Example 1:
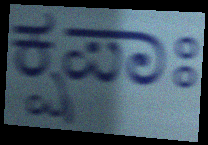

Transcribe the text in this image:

ಕ್ಷಪಾಃ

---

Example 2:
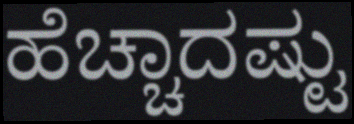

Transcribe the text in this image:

ಹೆಚ್ಚಾದಷ್ಟು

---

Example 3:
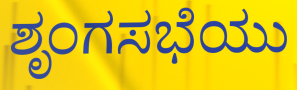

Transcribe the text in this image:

ಶೃಂಗಸಭೆಯು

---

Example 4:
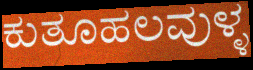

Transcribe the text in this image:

ಕುತೂಹಲವುಳ್ಳ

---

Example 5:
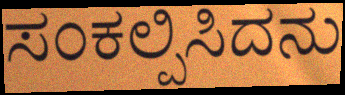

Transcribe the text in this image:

ಸಂಕಲ್ಪಿಸಿದನು